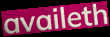
availeth